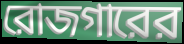
রোজগারের